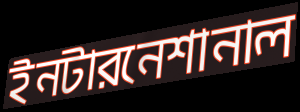
ইনটারনেশানাল